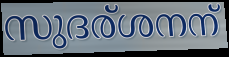
സുദര്ശനന്